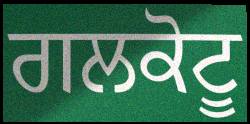
ਗਲਕੋਟੂ